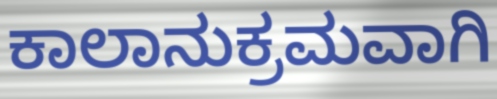
ಕಾಲಾನುಕ್ರಮವಾಗಿ